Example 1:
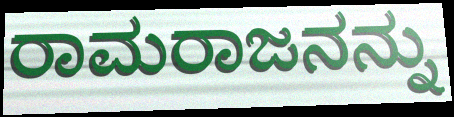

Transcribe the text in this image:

ರಾಮರಾಜನನ್ನು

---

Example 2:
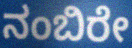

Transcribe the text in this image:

ನಂಬಿರೇ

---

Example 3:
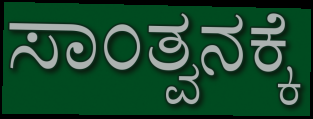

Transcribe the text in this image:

ಸಾಂತ್ವನಕ್ಕೆ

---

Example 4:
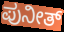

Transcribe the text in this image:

ಪುನೀತ್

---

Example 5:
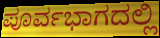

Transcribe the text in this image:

ಪೂರ್ವಭಾಗದಲ್ಲಿ